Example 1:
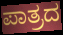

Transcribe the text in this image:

ಪಾತ್ರದ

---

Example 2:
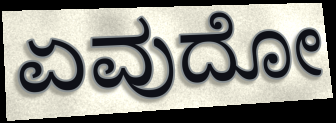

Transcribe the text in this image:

ಏವುದೋ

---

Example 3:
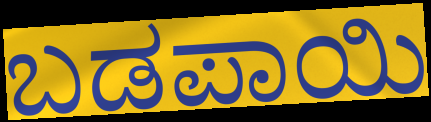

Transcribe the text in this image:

ಬಡಪಾಯಿ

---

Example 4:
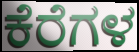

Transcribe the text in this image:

ಕೆರೆಗಳ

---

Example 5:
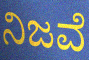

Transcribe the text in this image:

ನಿಜವೆ